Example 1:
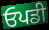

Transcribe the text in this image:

ਓਪਡੀ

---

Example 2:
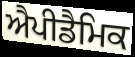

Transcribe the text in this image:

ਐਪੀਡੈਮਿਕ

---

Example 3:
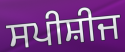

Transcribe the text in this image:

ਸਪੀਸ਼ੀਜ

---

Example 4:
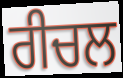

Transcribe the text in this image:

ਰੀਚਲ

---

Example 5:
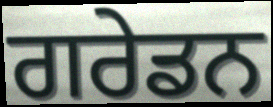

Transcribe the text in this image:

ਗਰੇਡਨ